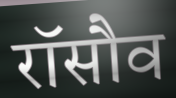
रॉसौव